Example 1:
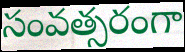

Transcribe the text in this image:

సంవత్సరంగా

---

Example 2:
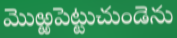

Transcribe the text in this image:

మొఱ్ఱపెట్టుచుండెను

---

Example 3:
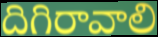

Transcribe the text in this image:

దిగిరావాలి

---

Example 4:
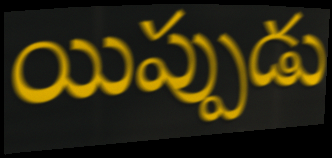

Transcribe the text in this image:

యిప్పుడు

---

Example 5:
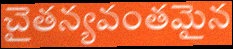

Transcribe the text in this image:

చైతన్యవంతమైన